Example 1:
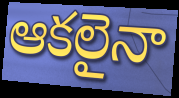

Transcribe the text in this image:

ఆకలైనా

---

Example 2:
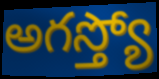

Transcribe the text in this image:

అగస్త్యో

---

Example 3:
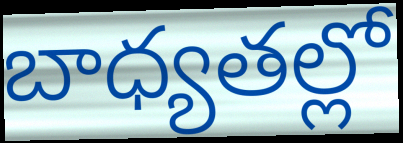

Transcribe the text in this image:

బాధ్యతల్లో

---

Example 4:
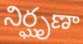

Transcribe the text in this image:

నిర్ఘృణా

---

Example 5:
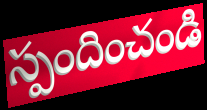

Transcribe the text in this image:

స్పందించండి